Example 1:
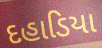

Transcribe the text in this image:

દહાડિયા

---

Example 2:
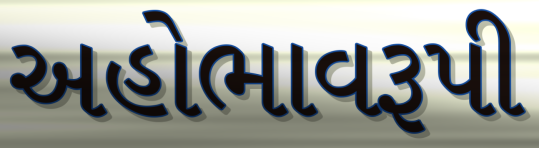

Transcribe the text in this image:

અહોભાવરૂપી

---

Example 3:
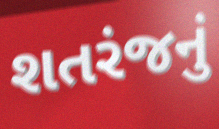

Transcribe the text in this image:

શતરંજનું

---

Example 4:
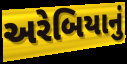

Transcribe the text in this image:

અરેબિયાનું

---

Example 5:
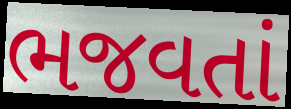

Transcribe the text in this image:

ભજવતાં